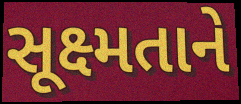
સૂક્ષ્મતાને